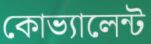
কোভ্যালেন্ট